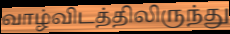
வாழ்விடத்திலிருந்து